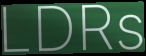
LDRs